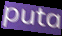
puta